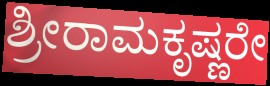
ಶ್ರೀರಾಮಕೃಷ್ಣರೇ